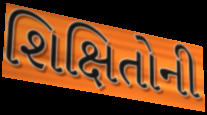
શિક્ષિતોની